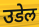
उडेल